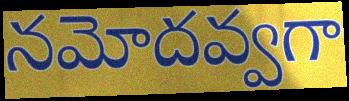
నమోదవ్వగా